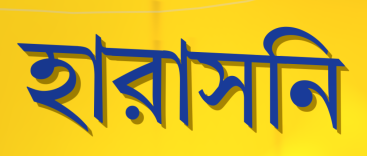
হারাসনি